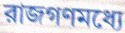
রাজগণমধ্যে